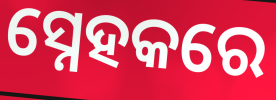
ସ୍ନେହକରେ